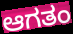
ಆಗತಂ